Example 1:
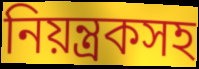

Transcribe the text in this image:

নিয়ন্ত্রকসহ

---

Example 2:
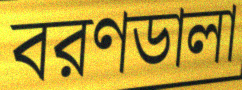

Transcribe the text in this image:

বরণডালা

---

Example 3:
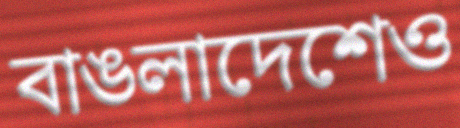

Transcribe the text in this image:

বাঙলাদেশেও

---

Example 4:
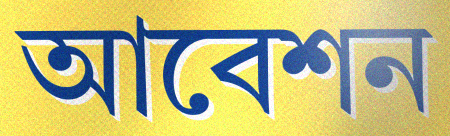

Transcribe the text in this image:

আবেশন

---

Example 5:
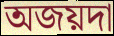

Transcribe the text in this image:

অজয়দা